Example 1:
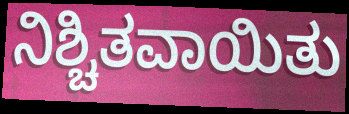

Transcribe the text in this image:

ನಿಶ್ಚಿತವಾಯಿತು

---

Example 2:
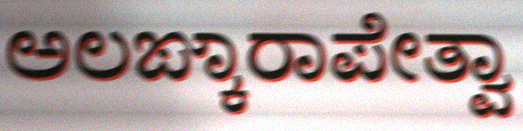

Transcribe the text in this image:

ಅಲಙ್ಕಾರಾಪೇತ್ವಾ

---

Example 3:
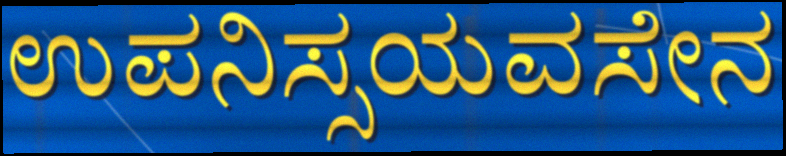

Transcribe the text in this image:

ಉಪನಿಸ್ಸಯವಸೇನ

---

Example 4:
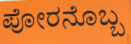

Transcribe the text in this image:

ಪೋರನೊಬ್ಬ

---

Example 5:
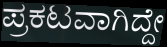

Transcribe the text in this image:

ಪ್ರಕಟವಾಗಿದ್ದೇ